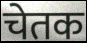
चेतक